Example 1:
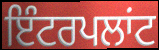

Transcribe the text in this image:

ਇੰਟਰਪਲਾਂਟ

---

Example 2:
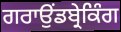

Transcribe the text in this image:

ਗਰਾਉਂਡਬ੍ਰੇਕਿੰਗ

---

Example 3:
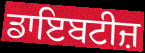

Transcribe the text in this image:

ਡਾਇਬਟੀਜ਼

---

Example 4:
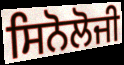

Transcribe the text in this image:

ਸਿਨੋਲੋਜੀ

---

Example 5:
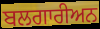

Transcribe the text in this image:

ਬਲਗਾਰੀਅਨ